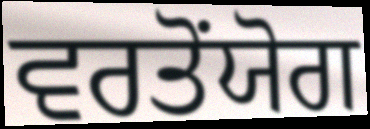
ਵਰਤੋਂਯੋਗ